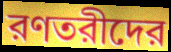
রণতরীদের